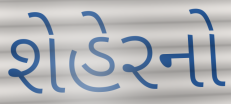
શેહેરનો